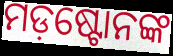
ମଡ଼ଷ୍ଟୋନଙ୍କ